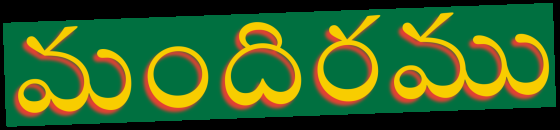
మందిరము